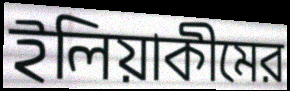
ইলিয়াকীমের